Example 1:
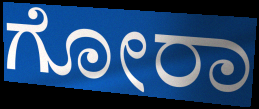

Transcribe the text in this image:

ಗೋರಾ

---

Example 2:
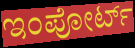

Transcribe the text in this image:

ಇಂಪೋರ್ಟ್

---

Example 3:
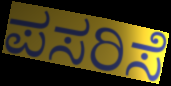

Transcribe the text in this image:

ಪಸರಿಸೆ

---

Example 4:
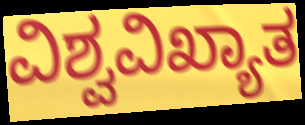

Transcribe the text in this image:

ವಿಶ್ವವಿಖ್ಯಾತ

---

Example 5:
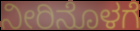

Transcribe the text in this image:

ನೀರಿನೊಳಗೆ